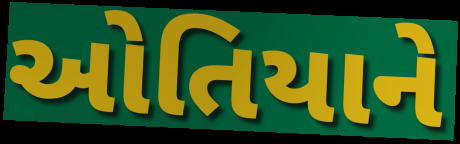
ઓતિયાને